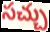
సచ్చు